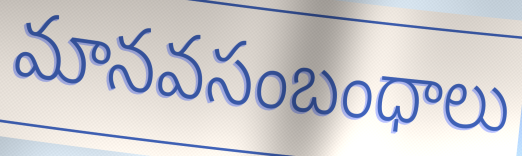
మానవసంబంధాలు